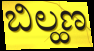
ಬಿಲ್ಹಣ